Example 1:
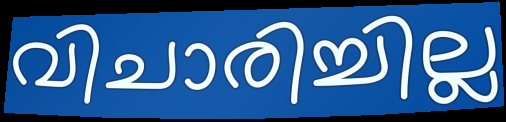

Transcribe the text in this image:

വിചാരിച്ചില്ല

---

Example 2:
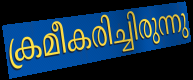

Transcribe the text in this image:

ക്രമീകരിച്ചിരുന്നു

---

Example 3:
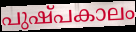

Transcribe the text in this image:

പുഷ്പകാലം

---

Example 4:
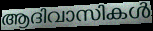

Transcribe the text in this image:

ആദിവാസികൾ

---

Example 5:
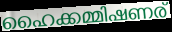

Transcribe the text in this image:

ഹൈക്കമ്മിഷണര്